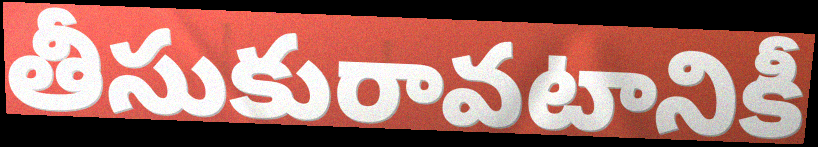
తీసుకురావటానికీ